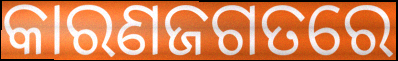
କାରଣଜଗତରେ